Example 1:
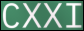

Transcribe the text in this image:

CXXI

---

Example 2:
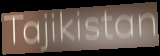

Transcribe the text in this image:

Tajikistan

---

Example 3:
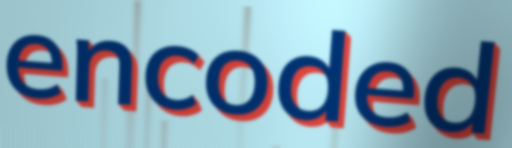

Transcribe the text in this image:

encoded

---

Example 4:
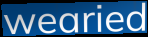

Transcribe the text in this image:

wearied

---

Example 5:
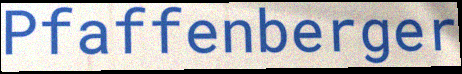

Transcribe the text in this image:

Pfaffenberger